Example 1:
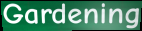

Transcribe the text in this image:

Gardening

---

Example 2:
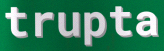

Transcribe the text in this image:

trupta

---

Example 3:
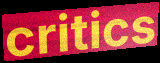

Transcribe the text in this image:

critics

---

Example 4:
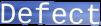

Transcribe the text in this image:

Defect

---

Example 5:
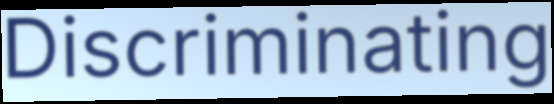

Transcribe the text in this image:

Discriminating